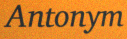
Antonym